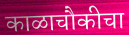
काळाचौकीचा